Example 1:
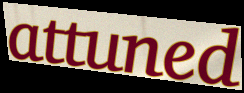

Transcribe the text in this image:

attuned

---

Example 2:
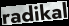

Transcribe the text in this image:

radikal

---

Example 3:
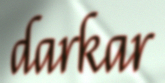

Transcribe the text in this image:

darkar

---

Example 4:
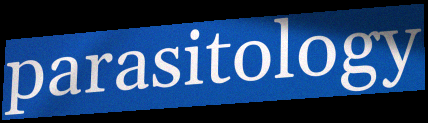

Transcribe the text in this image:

parasitology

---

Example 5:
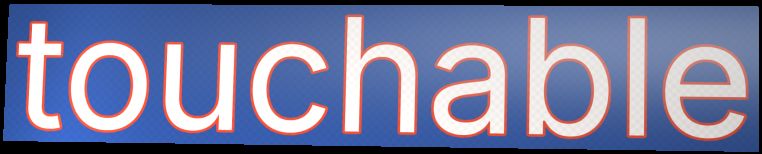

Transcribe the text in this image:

touchable